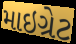
માઇગ્રેટ